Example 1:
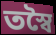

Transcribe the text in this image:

তস্বৈ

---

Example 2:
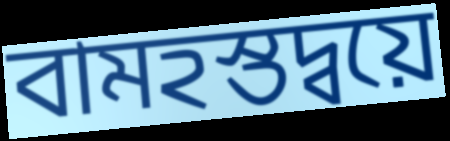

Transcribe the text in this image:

বামহস্তদ্বয়ে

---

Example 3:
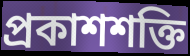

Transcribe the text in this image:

প্রকাশশক্তি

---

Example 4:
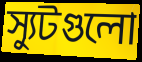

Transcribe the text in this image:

স্যুটগুলো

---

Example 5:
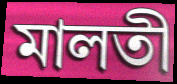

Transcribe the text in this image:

মালতী